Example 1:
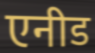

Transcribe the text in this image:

एनीड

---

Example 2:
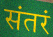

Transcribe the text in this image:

संतरं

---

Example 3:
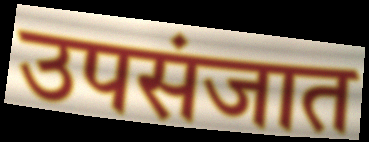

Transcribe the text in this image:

उपसंजात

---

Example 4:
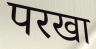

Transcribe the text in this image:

परखा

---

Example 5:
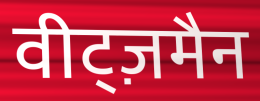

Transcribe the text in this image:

वीट्ज़मैन